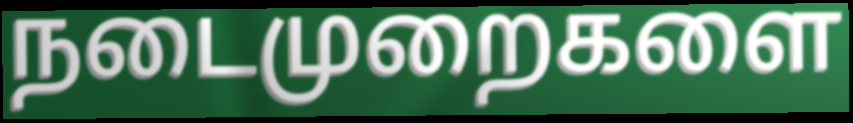
நடைமுறைகளை